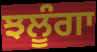
ਝਲੂੰਗਾ